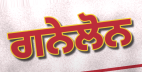
ਗਨੇਲੋਨ